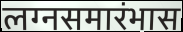
लग्नसमारंभास